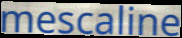
mescaline